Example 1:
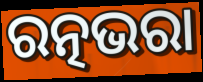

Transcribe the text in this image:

ରତ୍ନଭରା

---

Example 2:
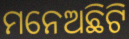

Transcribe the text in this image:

ମନେଅଛିଟି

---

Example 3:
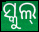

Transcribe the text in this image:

ସ୍କୁଲ୍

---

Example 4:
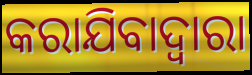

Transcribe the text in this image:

କରାଯିବାଦ୍ୱାରା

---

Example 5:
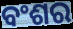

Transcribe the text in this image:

ବଂଶର